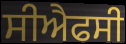
ਸੀਐਫਸੀ